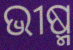
ଭୀଷ୍ମ